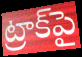
ట్రాక్‌పై